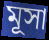
মূসা